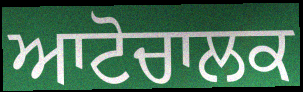
ਆਟੋਚਾਲਕ